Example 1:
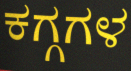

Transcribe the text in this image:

ಕಗ್ಗಗಳ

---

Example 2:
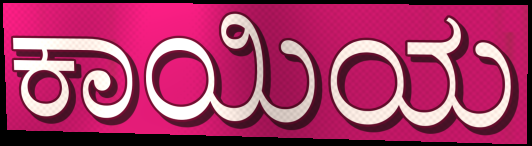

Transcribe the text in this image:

ಕಾಯಿಯ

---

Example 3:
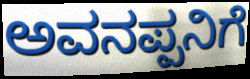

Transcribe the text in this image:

ಅವನಪ್ಪನಿಗೆ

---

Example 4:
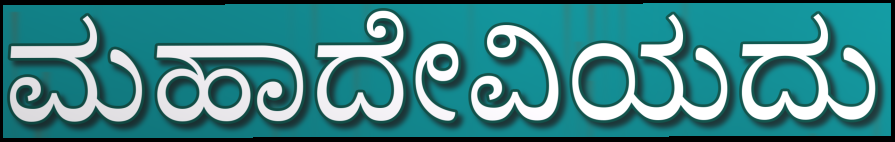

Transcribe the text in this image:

ಮಹಾದೇವಿಯದು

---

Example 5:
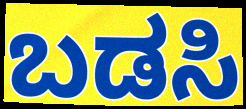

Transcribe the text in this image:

ಬಡಸಿ